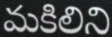
మకిలిని